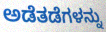
ಅಡೆತಡೆಗಳನ್ನು